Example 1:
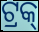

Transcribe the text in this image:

ଟ୍ରକ୍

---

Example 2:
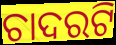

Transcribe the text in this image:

ଚାଦରଟି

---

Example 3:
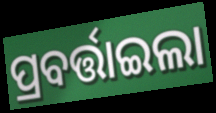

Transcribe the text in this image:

ପ୍ରବର୍ତ୍ତାଇଲା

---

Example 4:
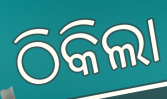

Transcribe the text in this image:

ଠିକିଲା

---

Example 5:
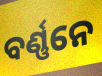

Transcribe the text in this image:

ବର୍ଣ୍ଣନେ